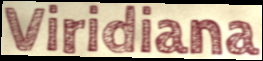
Viridiana